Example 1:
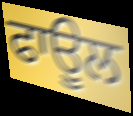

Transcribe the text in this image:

ਫਾਊਲ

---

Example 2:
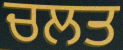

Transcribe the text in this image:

ਚਲਤ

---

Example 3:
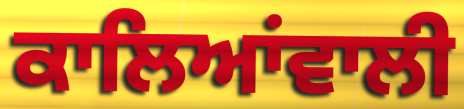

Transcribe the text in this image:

ਕਾਲਿਆਂਵਾਲੀ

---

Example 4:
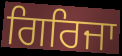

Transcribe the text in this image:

ਗਿਰਿਜਾ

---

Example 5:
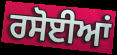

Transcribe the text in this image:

ਰਸੋਈਆਂ